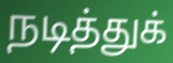
நடித்துக்